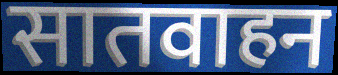
सातवाहन